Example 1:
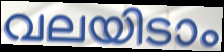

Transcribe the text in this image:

വലയിടാം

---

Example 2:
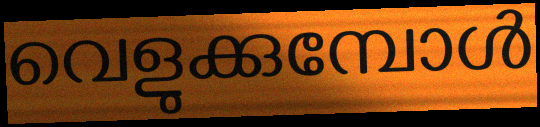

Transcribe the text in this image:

വെളുക്കുമ്പോൾ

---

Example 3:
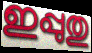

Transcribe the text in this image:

ഇപ്പുതു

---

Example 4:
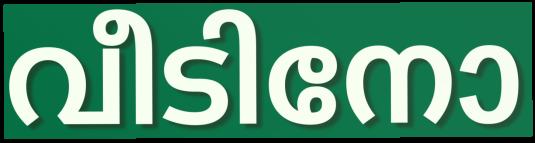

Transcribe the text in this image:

വീടിനോ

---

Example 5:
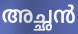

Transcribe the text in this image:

അച്ഛൻ